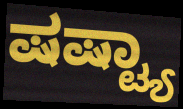
ಷಷ್ಟ್ಯಾ